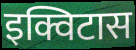
इक्विटास